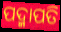
ପଦ୍ମାପତି